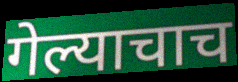
गेल्याचाच